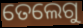
ତେଲେଗୁ